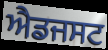
ਐਡਜਸਟ